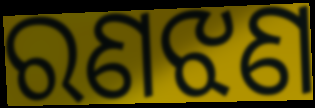
ରଣଝଣ